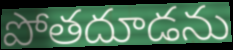
పోతదూడను